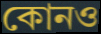
কোনও